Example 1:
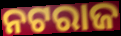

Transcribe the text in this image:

ନଟରାଜ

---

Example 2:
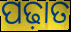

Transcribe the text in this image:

ପଢ଼ାତ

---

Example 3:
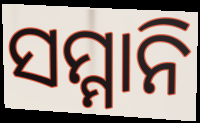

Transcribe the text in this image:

ସମ୍ମାନି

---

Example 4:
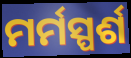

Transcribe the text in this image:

ମର୍ମସ୍ପର୍ଶ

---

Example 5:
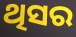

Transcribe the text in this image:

ଥିସର